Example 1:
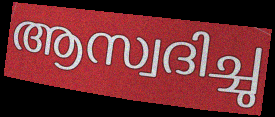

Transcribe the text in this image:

ആസ്വദിച്ചു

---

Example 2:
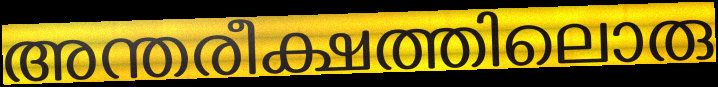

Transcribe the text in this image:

അന്തരീക്ഷത്തിലൊരു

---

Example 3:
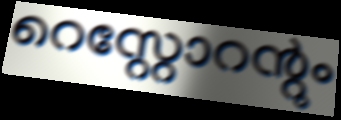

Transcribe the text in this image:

റെസ്റ്റോറന്റും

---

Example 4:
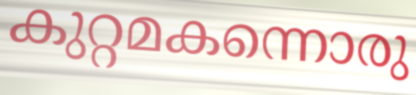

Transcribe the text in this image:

കുറ്റമകന്നൊരു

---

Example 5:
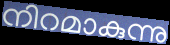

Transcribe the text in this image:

നിറമാകുന്നു